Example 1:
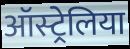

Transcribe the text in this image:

ऑस्‍ट्रेलिया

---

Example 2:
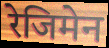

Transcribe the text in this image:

रेजिमेन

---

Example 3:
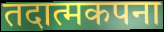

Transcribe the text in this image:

तदात्मकपना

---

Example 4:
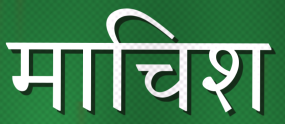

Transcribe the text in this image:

माचिश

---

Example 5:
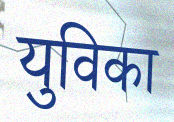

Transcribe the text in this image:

युविका